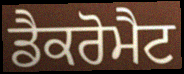
ਡੈਕਰੋਮੈਟ